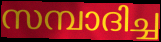
സമ്പാദിച്ച